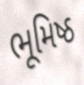
ભૂમિષ્ઠ